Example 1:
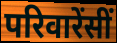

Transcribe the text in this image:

परिवारेंसीं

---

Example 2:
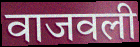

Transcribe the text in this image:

वाजवली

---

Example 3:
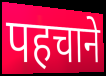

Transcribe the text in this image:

पहचाने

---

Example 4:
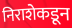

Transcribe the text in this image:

निराशेकडून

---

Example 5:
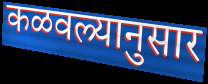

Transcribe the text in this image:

कळवल्यानुसार